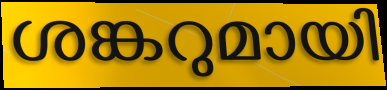
ശങ്കറുമായി